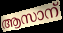
ആസാന്